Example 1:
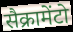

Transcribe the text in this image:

सैक्रामेंटो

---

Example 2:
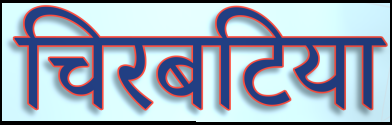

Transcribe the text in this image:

चिरबटिया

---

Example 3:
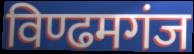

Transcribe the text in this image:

विण्ढमगंज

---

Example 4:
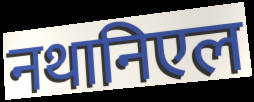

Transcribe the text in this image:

नथानिएल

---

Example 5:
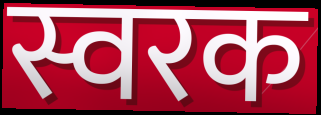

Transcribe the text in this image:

स्वरक